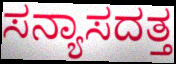
ಸನ್ಯಾಸದತ್ತ